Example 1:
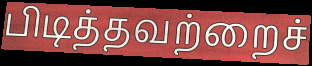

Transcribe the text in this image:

பிடித்தவற்றைச்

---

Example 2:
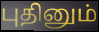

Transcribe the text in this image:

புதினும்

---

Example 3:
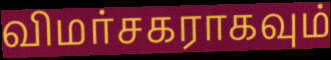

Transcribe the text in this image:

விமர்சகராகவும்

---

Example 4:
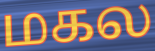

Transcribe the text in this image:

மகல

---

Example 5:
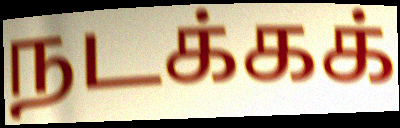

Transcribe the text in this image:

நடக்கக்